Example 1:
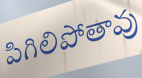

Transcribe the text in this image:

పిగిలిపోతావు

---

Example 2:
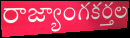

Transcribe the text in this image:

రాజ్యాంగకర్తల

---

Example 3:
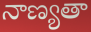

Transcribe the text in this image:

నాణ్యతా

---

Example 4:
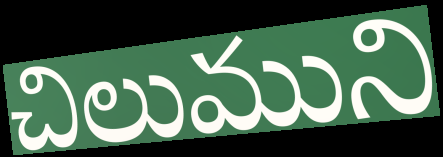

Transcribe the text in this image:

చిలుముని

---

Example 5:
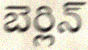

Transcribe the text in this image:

బెర్లిన్